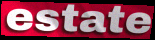
estate